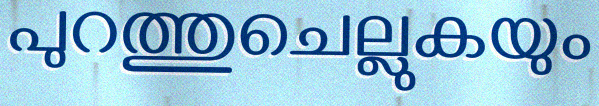
പുറത്തുചെല്ലുകയും